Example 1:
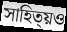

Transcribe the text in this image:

সাহিত্য়ও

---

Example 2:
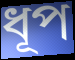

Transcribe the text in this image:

ধূপ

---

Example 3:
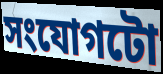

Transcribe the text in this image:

সংযোগটো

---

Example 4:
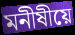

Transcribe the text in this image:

মনীষীয়ে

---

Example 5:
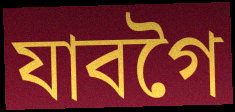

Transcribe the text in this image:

যাবগৈ